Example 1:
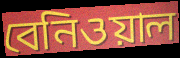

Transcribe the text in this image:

বেনিওয়াল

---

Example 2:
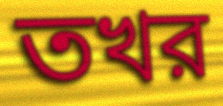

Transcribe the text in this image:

তখর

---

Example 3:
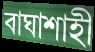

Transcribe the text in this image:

বাঘাশাহী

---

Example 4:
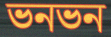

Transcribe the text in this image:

ভনভন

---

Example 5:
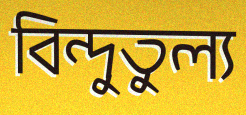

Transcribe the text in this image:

বিন্দুতুল্য